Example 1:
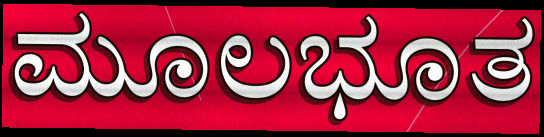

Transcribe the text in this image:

ಮೂಲಭೂತ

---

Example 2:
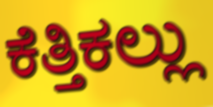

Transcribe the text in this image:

ಕೆತ್ತಿಕಲ್ಲು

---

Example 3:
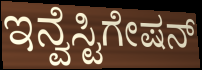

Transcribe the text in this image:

ಇನ್ವೆಸ್ಟಿಗೇಷನ್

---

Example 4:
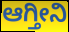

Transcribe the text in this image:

ಆಗ್ತೀನಿ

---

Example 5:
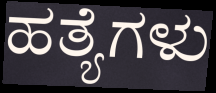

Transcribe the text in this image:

ಹತ್ಯೆಗಳು